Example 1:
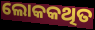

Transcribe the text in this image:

ଲୋକକଥିତ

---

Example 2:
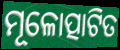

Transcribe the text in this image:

ମୂଳୋତ୍ପାଟିତ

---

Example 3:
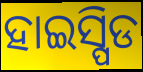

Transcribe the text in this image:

ହାଇସ୍ପିଡ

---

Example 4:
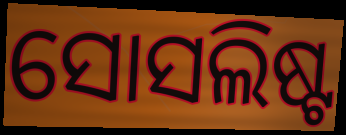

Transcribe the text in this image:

ସୋସଲିଷ୍ଟ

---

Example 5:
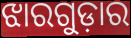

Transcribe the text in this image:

ଝାରଗୁଡ଼ାର